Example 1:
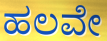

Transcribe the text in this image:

ಹಲವೇ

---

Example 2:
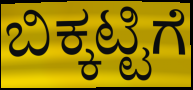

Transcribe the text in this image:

ಬಿಕ್ಕಟ್ಟಿಗೆ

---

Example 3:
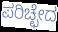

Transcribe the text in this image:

ಪರಿಚ್ಛೇದ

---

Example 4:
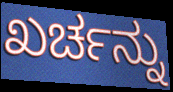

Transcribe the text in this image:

ಖರ್ಚನ್ನು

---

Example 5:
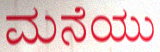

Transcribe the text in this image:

ಮನೆಯು